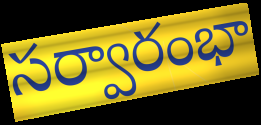
సర్వారంభా